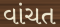
વાંચત